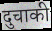
दुचाकी